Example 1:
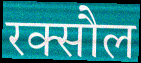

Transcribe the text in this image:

रक्सौल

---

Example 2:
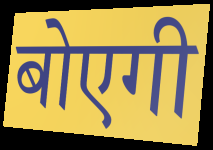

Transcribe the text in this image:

बोएगी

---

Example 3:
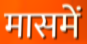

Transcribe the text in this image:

मासमें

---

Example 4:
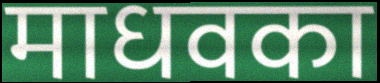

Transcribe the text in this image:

माधवका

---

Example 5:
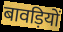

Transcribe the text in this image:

बावड़ियों